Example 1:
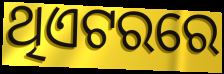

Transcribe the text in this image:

ଥିଏଟରରେ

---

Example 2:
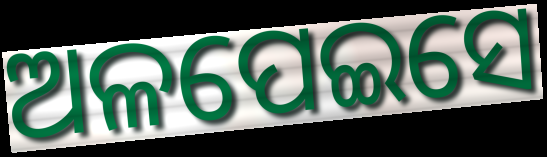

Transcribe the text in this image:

ଅଳପେଇସେ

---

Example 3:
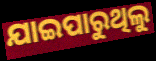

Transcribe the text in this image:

ଯାଇପାରୁଥିଲୁ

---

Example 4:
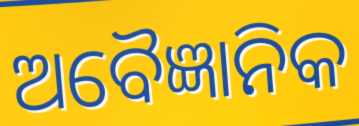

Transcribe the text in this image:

ଅବୈଜ୍ଞାନିକ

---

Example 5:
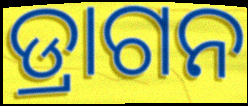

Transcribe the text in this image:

ଡ୍ରାଗନ